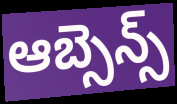
ఆబ్సెన్స్